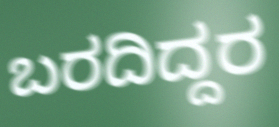
ಬರದಿದ್ದರ